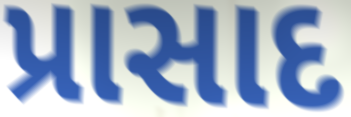
પ્રાસાદ